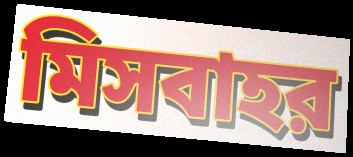
মিসবাহর